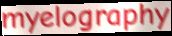
myelography